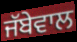
ਜੱਬੇਵਾਲ